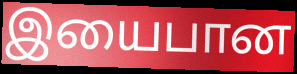
இயைபான